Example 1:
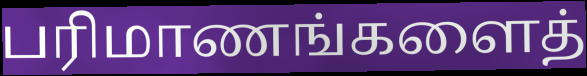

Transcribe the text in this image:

பரிமாணங்களைத்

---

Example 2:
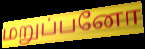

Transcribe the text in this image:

மறுப்பனோ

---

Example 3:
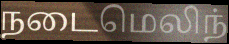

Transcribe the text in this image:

நடைமெலிந்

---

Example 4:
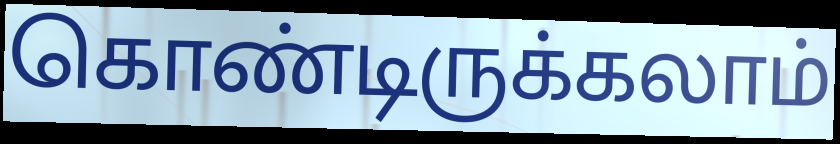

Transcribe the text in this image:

கொண்டிருக்கலாம்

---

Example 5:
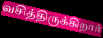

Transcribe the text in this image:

வசித்திருக்கிறார்